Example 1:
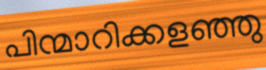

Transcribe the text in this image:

പിന്മാറിക്കളഞ്ഞു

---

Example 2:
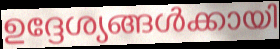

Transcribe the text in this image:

ഉദ്ദേശ്യങ്ങൾക്കായി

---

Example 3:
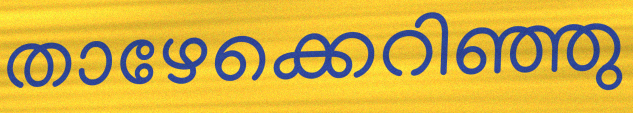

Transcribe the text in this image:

താഴേക്കെറിഞ്ഞു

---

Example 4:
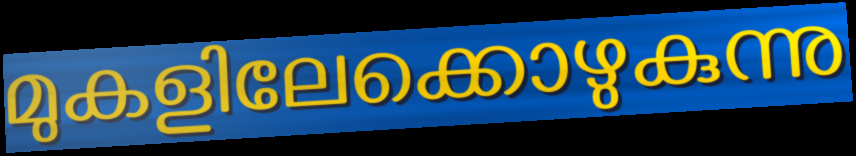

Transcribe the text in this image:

മുകളിലേക്കൊഴുകുന്നു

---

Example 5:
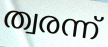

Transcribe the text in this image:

ത്വരന്ന്